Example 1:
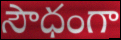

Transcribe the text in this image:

సౌధంగా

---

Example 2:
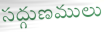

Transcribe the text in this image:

సద్గుణములు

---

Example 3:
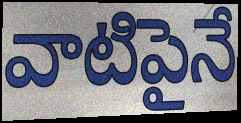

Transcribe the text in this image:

వాటిపైనే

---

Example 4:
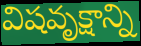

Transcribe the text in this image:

విషవృక్షాన్ని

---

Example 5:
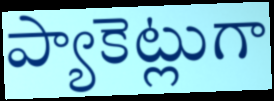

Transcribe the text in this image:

ప్యాకెట్లుగా